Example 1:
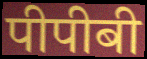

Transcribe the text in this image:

पीपीबी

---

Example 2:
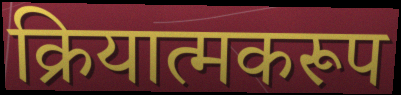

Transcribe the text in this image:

क्रियात्मकरूप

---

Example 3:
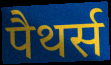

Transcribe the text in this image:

पैथर्स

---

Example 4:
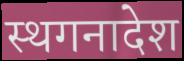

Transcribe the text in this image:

स्थगनादेश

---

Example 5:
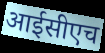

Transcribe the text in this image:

आईसीएच